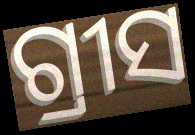
ଗ୍ରୀସ